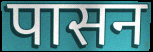
पासन